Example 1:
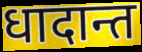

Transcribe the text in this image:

धादान्त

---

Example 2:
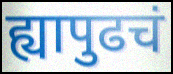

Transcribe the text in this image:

ह्यापुढचं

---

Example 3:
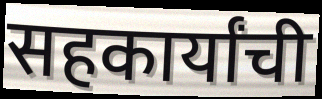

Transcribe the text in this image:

सहकार्यांची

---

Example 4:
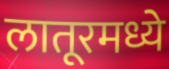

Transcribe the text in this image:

लातूरमध्ये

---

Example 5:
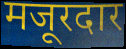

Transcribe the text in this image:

मजूरदार